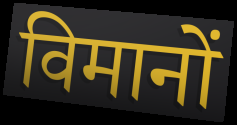
विमानों